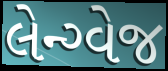
લેન્ગ્વેજ